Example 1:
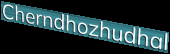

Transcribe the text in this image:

Cherndhozhudhal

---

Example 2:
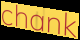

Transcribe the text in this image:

chank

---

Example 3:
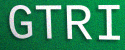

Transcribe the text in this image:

GTRI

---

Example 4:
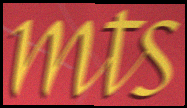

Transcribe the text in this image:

mts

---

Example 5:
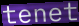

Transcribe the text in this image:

tenet